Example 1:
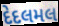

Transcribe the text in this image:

દેદલમલ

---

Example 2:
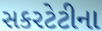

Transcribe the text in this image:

સકરટેટીના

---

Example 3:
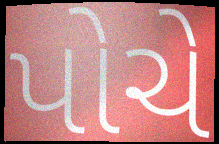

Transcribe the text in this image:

પોચે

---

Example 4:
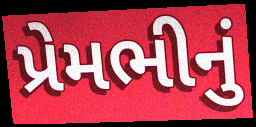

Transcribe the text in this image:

પ્રેમભીનું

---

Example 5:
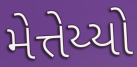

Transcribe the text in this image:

મેત્તેય્યો